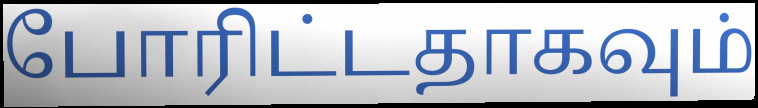
போரிட்டதாகவும்